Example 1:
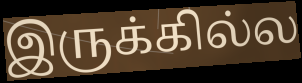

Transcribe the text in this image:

இருக்கில்ல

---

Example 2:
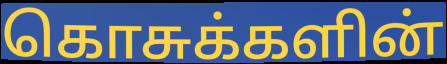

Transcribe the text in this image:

கொசுக்களின்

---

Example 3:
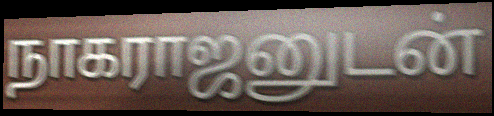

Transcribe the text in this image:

நாகராஜனுடன்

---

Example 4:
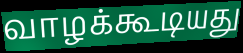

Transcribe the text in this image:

வாழக்கூடியது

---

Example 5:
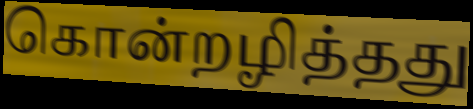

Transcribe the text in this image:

கொன்றழித்தது